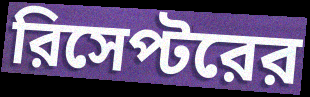
রিসেপ্টরের